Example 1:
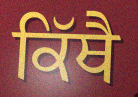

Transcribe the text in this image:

ਕਿੱਥੈ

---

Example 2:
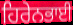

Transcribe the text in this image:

ਹਿਰੇਨਭਾਈ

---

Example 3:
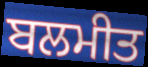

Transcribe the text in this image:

ਬਲਮੀਤ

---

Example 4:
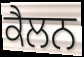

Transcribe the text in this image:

ਕੈਲਨ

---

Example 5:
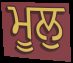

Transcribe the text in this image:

ਮੂਲੁ